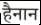
हैनान